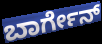
ಬಾರ್ಗೇನ್